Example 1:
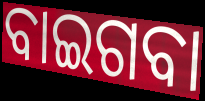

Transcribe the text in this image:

ବାଇଗବା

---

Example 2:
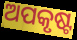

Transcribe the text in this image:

ଅପକୃଷ୍ଟ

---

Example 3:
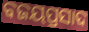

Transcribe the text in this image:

ବଜୟପ୍ରସାଦ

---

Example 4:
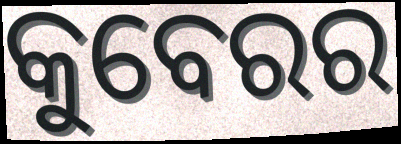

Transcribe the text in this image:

କୁବେରର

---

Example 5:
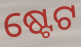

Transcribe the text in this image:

ଷ୍ଟେଟ